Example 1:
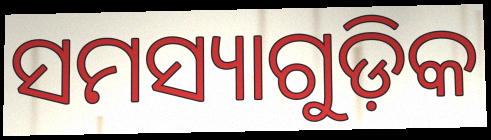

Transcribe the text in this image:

ସମସ୍ୟାଗୁଡ଼ିକ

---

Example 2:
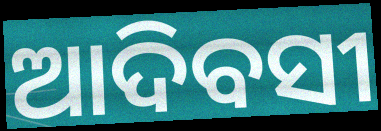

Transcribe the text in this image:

ଆଦିବସୀ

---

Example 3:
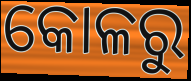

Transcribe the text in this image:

କୋଳରୁ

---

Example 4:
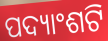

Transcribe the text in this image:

ପଦ୍ୟାଂଶଟି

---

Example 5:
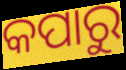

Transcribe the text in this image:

କପାରୁ